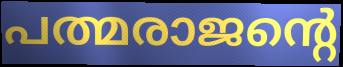
പത്മരാജന്റെ